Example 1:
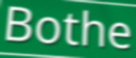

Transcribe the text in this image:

Bothe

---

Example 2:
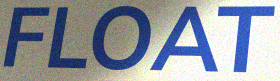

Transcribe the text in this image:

FLOAT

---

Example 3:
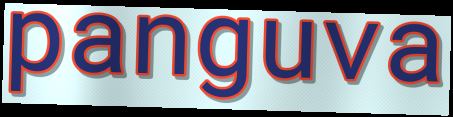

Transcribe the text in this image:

panguva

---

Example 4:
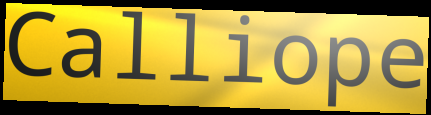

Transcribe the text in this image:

Calliope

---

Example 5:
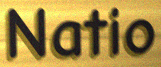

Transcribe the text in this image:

Natio